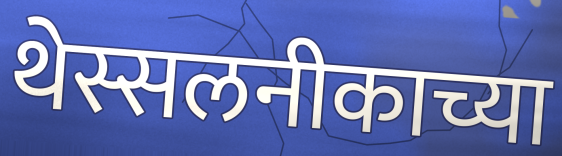
थेस्सलनीकाच्या